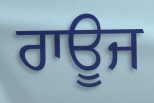
ਰਾਊਜ